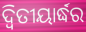
ଦ୍ୱିତୀୟାର୍ଦ୍ଧର